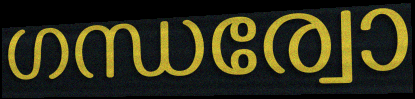
ഗന്ധര്വോ